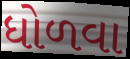
ધોળવા